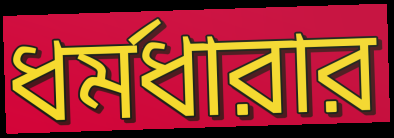
ধর্মধারার